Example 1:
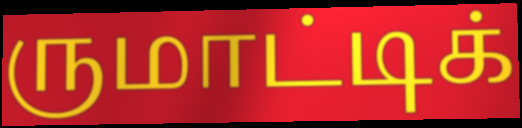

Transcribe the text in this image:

ருமாட்டிக்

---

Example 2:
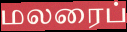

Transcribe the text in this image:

மலரைப்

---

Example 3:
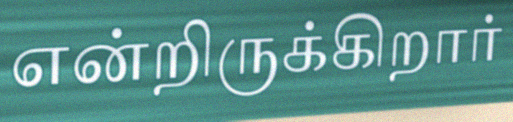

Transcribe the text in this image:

என்றிருக்கிறார்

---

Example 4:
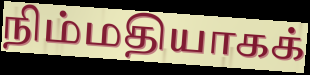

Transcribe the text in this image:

நிம்மதியாகக்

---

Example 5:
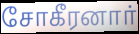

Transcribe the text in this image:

சோகீரனார்